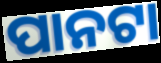
ପାନଟା